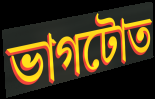
ভাগটোত